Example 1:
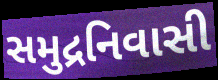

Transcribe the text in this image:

સમુદ્રનિવાસી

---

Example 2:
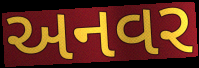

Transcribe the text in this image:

અનવર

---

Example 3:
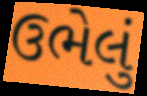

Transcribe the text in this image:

ઉભેલું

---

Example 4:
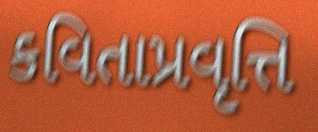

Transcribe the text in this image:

કવિતાપ્રવૃત્તિ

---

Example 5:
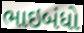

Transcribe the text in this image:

ભાઇબંધો